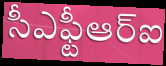
సీఎఫ్టీఆర్ఐ